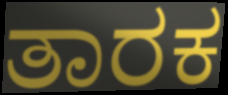
ತಾರಕ